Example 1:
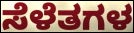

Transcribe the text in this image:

ಸೆಳೆತಗಳ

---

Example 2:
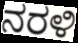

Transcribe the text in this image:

ನರಳಿ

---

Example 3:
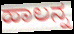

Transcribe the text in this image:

ಹಾಲನ್ನ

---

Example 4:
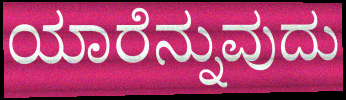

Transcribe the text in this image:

ಯಾರೆನ್ನುವುದು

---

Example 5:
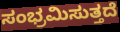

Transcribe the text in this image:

ಸಂಭ್ರಮಿಸುತ್ತದೆ